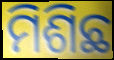
ମିଶିଛ